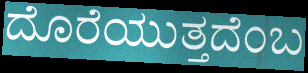
ದೊರೆಯುತ್ತದೆಂಬ